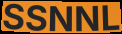
SSNNL